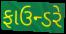
ફાઉન્ડરે